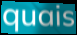
quais